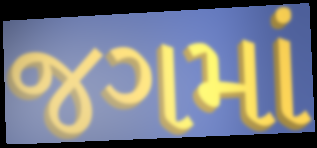
જગમાં